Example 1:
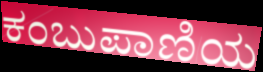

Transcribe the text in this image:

ಕಂಬುಪಾಣಿಯ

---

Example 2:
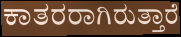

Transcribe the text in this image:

ಕಾತರರಾಗಿರುತ್ತಾರೆ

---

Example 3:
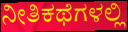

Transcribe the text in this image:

ನೀತಿಕಥೆಗಳಲ್ಲಿ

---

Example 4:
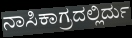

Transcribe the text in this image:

ನಾಸಿಕಾಗ್ರದಲ್ಲಿರ್ದು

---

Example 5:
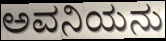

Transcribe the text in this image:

ಅವನಿಯನು